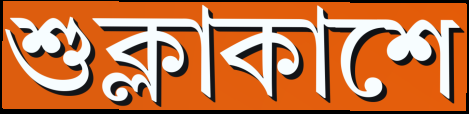
শুক্লাকাশে